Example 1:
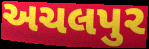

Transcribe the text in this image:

અચલપુર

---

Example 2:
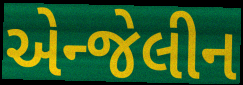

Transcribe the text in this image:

એન્જેલીન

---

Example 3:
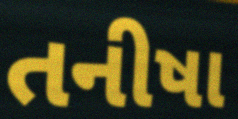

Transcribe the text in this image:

તનીષા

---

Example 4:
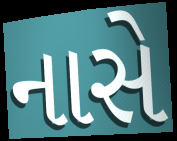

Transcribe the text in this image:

નાસે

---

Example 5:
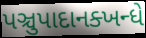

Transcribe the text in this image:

પઞ્ચુપાદાનક્ખન્ધે